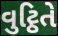
વુટ્ઠિતે